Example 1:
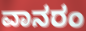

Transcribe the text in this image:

ವಾನರಂ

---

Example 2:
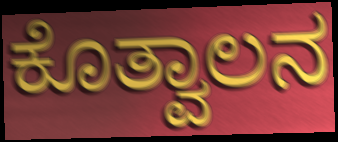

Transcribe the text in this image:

ಕೊತ್ವಾಲನ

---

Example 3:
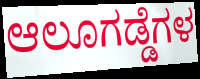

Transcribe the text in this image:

ಆಲೂಗಡ್ಡೆಗಳ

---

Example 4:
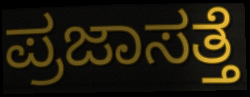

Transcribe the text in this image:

ಪ್ರಜಾಸತ್ತೆ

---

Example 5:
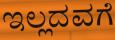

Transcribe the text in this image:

ಇಲ್ಲದವಗೆ